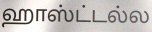
ஹாஸ்ட்டல்ல